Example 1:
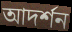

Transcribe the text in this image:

আদর্শন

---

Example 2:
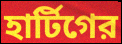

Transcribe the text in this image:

হার্টিগের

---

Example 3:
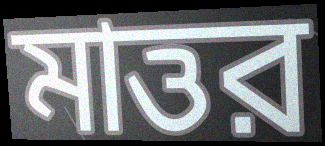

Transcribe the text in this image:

মাত্তর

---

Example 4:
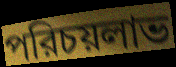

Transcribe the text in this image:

পরিচয়লাভ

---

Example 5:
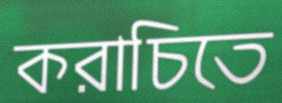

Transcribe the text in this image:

করাচিতে